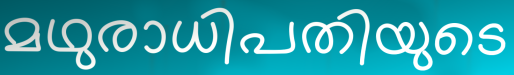
മഥുരാധിപതിയുടെ